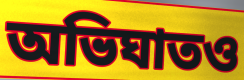
অভিঘাতও